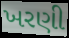
ખરણી